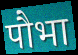
पौभा